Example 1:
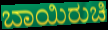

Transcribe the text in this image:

ಬಾಯಿರುಚಿ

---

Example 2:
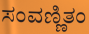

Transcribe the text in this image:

ಸಂವಣ್ಣಿತಂ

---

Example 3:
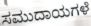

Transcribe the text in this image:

ಸಮುದಾಯಗಳೆ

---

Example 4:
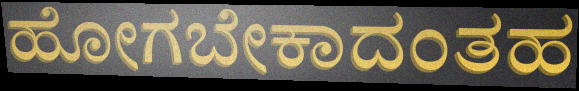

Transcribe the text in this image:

ಹೋಗಬೇಕಾದಂತಹ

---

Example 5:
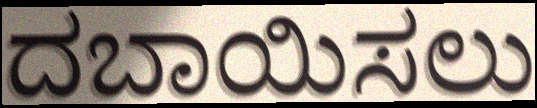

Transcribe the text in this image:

ದಬಾಯಿಸಲು